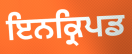
ਇਨਕ੍ਰਿਪਡ